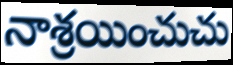
నాశ్రయించుచు